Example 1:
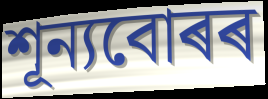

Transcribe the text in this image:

শূন্যবোৰৰ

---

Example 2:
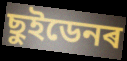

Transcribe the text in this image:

ছুইডেনৰ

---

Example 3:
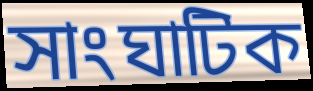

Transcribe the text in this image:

সাংঘাটিক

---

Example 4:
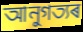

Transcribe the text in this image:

আনুগত্যৰ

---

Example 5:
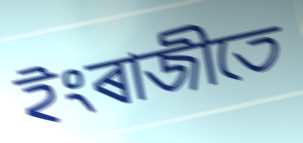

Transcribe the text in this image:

ইংৰাজীতে